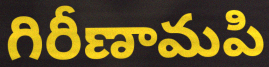
గిరీణామపి